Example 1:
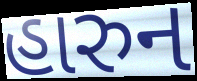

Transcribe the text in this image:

હારુન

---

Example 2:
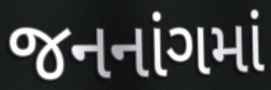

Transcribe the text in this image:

જનનાંગમાં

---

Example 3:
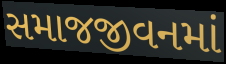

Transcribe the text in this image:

સમાજજીવનમાં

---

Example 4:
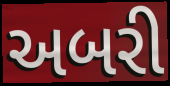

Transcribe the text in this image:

અબરી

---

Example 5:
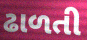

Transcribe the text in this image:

ઢાળતી